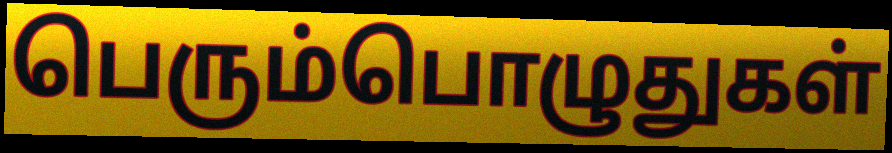
பெரும்பொழுதுகள்